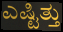
ಎಷ್ಟಿತ್ತು